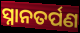
ସ୍ନାନତର୍ପଣ